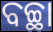
ବଚ୍ଛା